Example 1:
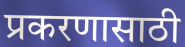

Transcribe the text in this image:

प्रकरणासाठी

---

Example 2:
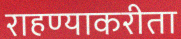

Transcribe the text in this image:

राहण्याकरीता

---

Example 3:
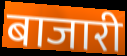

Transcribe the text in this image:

बाजारी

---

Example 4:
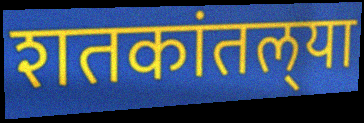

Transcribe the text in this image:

शतकांतल्या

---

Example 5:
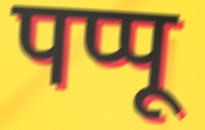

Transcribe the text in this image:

पप्पू